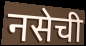
नसेची